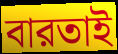
বারতাই